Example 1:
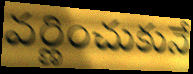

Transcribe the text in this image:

వర్ణించుకునే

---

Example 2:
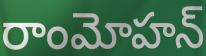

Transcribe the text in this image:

రాంమోహన్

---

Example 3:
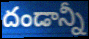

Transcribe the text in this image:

దండాన్నీ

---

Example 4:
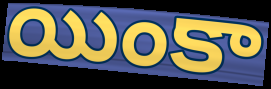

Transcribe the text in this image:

యింకా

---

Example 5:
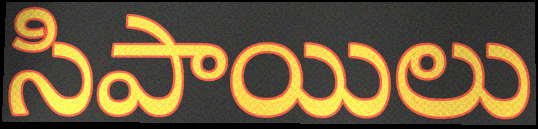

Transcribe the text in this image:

సిపాయిలు